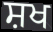
ਸ਼ਖ